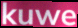
kuwe